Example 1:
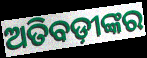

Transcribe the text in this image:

ଅତିବଡ଼ୀଙ୍କର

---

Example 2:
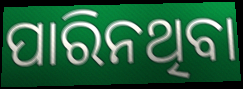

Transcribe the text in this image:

ପାରିନଥିବା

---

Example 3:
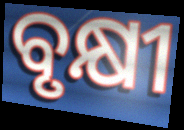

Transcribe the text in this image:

ବୃକ୍ଷୀ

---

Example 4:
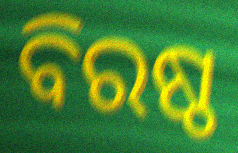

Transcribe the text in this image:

ବିରଷ୍ଠ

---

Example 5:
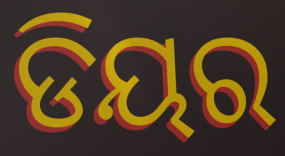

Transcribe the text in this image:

ଡିୟର